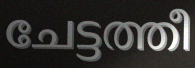
ചേട്ടത്തീ